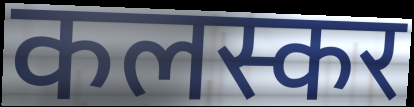
कलस्कर